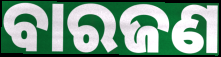
ବାରଜଣ